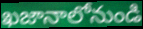
ఖజానాలోనుండి